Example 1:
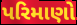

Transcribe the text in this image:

પરિમાણો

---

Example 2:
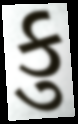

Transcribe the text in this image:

કુ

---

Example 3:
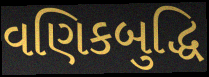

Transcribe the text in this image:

વણિકબુદ્ધિ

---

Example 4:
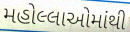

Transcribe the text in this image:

મહોલ્લાઓમાંથી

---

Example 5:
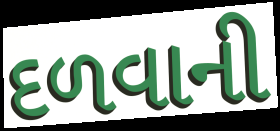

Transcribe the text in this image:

દળવાની